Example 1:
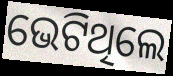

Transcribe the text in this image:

ଭେଟିଥିଲେ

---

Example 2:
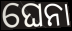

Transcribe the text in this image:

ଘେନା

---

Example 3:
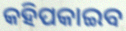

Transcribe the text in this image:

କହିପକାଇବ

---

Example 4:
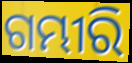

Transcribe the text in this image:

ଗମ୍ଭୀରି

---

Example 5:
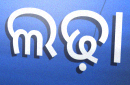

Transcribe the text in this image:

ଲଢ଼ା